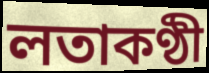
লতাকণ্ঠী